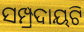
ସମ୍ପ୍ରଦାୟଟି